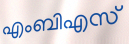
എംബിഎസ്